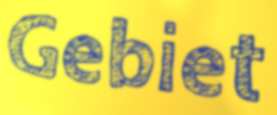
Gebiet